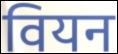
वियन